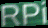
RPi